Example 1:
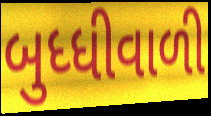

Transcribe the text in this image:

બુધ્ધીવાળી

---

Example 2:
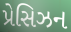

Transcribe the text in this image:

પ્રેસિઝન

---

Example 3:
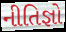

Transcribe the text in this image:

નીતિજ્ઞો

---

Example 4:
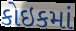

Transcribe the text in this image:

કોઇકમાં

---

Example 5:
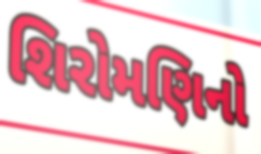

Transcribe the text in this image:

શિરોમણિનો